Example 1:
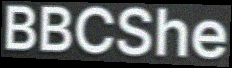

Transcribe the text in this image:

BBCShe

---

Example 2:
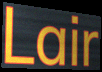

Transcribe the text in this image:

Lair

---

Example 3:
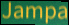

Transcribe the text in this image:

Jampa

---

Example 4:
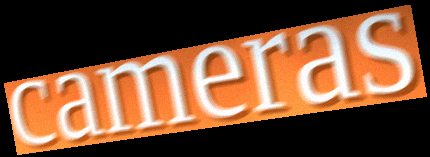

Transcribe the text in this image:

cameras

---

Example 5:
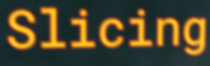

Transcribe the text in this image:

Slicing